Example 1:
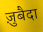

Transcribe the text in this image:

ज़ुबैदा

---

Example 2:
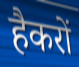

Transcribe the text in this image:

हैकरों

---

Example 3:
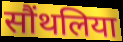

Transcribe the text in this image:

सौंथलिया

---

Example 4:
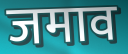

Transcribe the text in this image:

जमाव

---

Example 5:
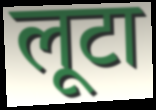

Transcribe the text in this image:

लूटा